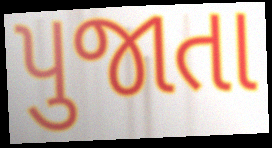
પુજાતા